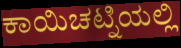
ಕಾಯಿಚಟ್ನಿಯಲ್ಲಿ